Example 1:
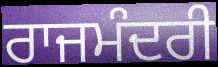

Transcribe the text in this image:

ਰਾਜਮੰਦਰੀ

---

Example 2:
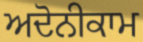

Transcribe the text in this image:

ਅਦੋਨੀਕਾਮ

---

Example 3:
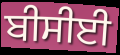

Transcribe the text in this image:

ਬੀਸੀਈ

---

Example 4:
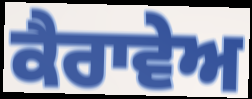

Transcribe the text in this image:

ਕੈਰਾਵੇਅ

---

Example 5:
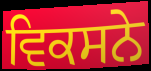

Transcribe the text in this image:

ਵਿਕਸਨੇ